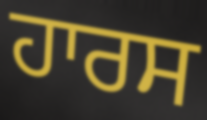
ਹਾਰਸ